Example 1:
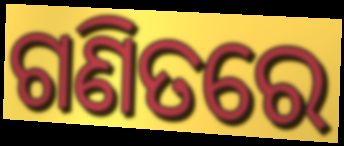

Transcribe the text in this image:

ଗଣିତରେ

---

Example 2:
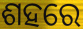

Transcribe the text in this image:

ଶହରେ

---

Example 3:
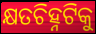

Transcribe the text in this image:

କ୍ଷତଚିହ୍ନଟିକୁ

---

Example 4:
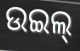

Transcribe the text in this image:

ଉଇଲ୍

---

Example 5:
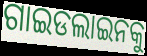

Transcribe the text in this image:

ଗାଇଡଲାଇନକୁ